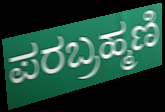
ಪರಬ್ರಹ್ಮಣಿ